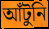
আঁটুনি